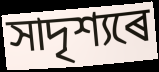
সাদৃশ্যৰে